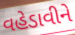
વહેડાવીને